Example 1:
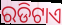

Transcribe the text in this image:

ରଡିଟାଏ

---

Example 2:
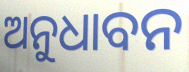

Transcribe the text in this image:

ଅନୁଧାବନ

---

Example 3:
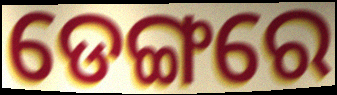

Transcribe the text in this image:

ଡେଙ୍ଗରେ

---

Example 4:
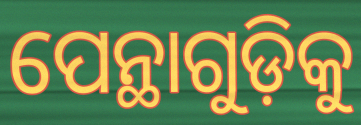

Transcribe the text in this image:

ପେନ୍ଥାଗୁଡ଼ିକୁ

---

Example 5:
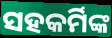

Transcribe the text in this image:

ସହକର୍ମିଙ୍କ